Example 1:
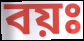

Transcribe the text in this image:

বয়ঃ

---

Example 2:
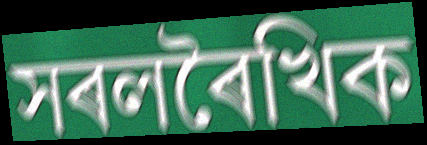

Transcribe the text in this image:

সৰলৰৈখিক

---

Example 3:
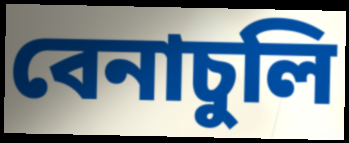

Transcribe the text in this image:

বেনাচুলি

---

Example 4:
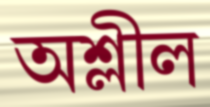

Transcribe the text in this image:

অশ্লীল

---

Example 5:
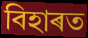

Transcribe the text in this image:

বিহাৰত